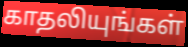
காதலியுங்கள்